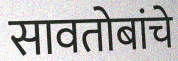
सावतोबांचे